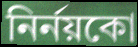
নিৰ্নয়কো